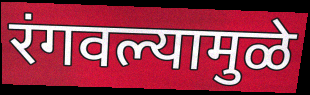
रंगवल्यामुळे